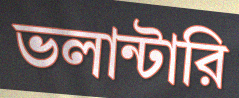
ভলান্টারি